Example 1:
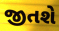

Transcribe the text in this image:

જીતશે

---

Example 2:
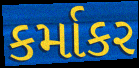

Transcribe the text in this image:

કર્માકર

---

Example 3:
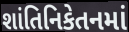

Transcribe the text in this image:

શાંતિનિકેતનમાં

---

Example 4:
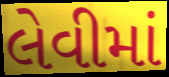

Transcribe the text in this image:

લેવીમાં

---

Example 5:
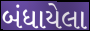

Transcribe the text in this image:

બંધાયેલા